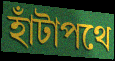
হাঁটাপথে